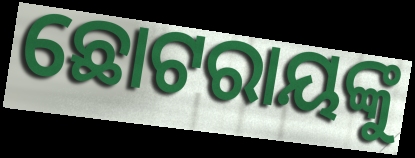
ଛୋଟରାୟଙ୍କୁ